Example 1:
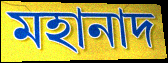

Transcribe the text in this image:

মহানাদ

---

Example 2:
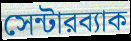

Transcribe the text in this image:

সেন্টারব্যাক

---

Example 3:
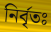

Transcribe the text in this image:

নির্বৃতঃ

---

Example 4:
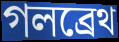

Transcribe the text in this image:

গলব্রেথ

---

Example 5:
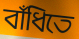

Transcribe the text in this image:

বাঁধিতে